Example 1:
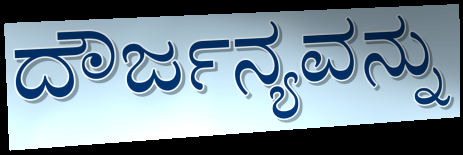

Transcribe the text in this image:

ದೌರ್ಜನ್ಯವನ್ನು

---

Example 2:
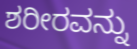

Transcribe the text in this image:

ಶರೀರವನ್ನು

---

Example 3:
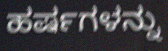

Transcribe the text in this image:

ಹರ್ಷಗಳನ್ನು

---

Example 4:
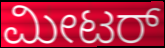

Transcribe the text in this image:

ಮೀಟರ್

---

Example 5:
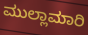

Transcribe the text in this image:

ಮುಲ್ಲಾಮಾರಿ